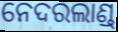
ନେଦରଲାଣ୍ଡ୍